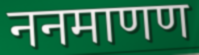
ननमाणण